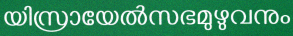
യിസ്രായേൽസഭമുഴുവനും